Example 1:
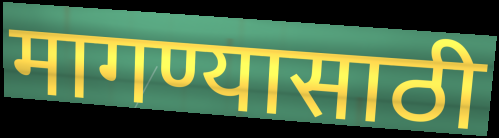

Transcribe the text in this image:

मागण्यासाठी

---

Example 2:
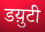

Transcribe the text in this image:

डय़ुटी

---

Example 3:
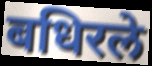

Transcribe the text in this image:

बधिरले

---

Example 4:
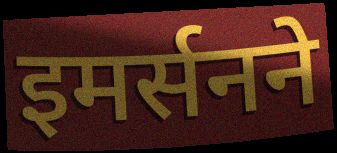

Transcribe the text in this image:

इमर्सनने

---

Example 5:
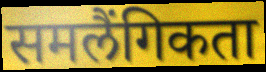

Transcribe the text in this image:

समलैंगिकता